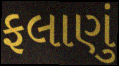
ફલાણું